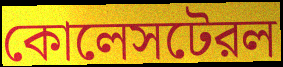
কোলেসটেরল